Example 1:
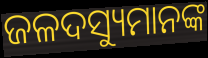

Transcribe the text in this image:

ଜଳଦସ୍ୟୁମାନଙ୍କ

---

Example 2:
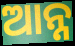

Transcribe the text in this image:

ଆନ୍ନ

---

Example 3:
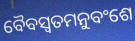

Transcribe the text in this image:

ବୈବସ୍ଵତମନୁବଂଶେ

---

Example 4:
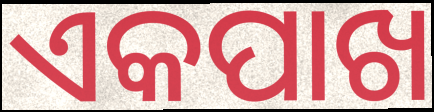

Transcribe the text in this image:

ଏକପାଖ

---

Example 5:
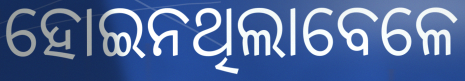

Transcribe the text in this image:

ହୋଇନଥିଲାବେଳେ